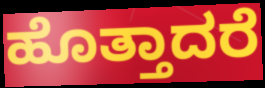
ಹೊತ್ತಾದರೆ